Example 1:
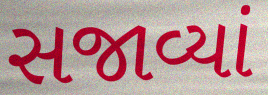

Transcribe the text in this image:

સજાવ્યાં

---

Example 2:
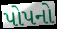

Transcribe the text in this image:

પોપનો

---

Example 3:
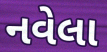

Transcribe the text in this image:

નવેલા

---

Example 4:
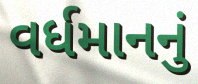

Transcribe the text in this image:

વર્ધમાનનું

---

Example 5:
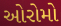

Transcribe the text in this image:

ઓરોમો